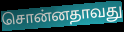
சொன்னதாவது